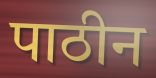
पाठीन